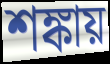
শঙ্কায়